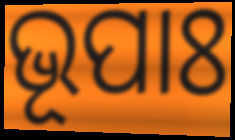
ଭୂପାଃ